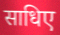
साधिए